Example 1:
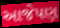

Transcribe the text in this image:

આજેપણ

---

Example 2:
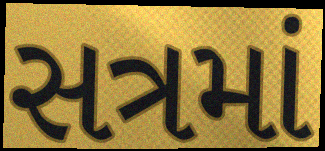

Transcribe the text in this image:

સત્રમાં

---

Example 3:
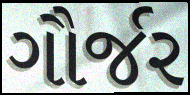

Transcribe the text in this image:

ગૌર્જર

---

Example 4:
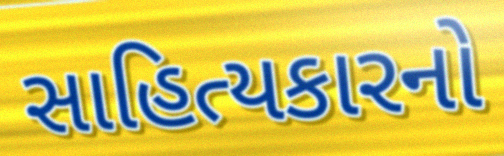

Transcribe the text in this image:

સાહિત્યકારનો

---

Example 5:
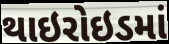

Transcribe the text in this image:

થાઇરોઇડમાં